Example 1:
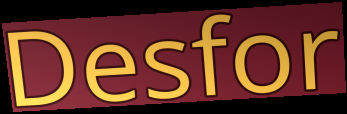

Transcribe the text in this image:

Desfor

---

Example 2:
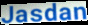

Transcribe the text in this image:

Jasdan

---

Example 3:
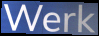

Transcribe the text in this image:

Werk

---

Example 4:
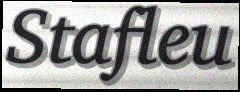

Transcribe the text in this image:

Stafleu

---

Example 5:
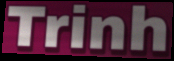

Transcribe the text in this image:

Trinh